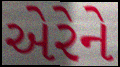
એરેને